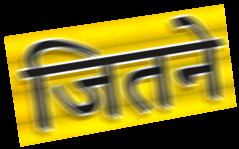
जितने